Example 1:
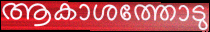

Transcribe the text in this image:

ആകാശത്തോടു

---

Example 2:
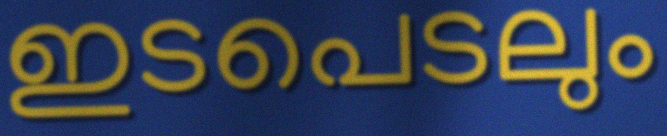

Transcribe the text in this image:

ഇടപെടലും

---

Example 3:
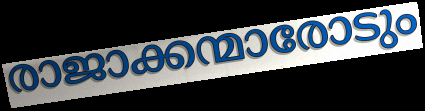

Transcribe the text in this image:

രാജാക്കന്മാരോടും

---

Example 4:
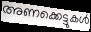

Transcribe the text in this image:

അണക്കെട്ടുകൾ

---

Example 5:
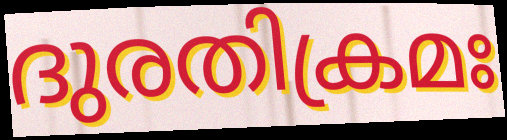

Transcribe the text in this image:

ദുരതിക്രമഃ